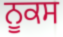
ਨੂਕਸ